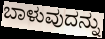
ಬಾಳುವುದನ್ನು